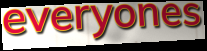
everyones